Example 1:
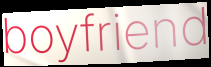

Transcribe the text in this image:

boyfriend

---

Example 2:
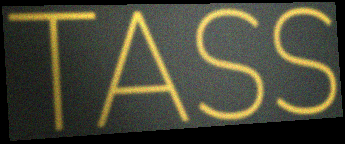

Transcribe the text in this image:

TASS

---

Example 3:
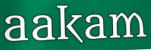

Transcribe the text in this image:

aakam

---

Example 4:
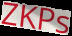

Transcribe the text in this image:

ZKPs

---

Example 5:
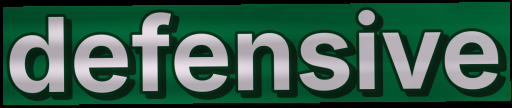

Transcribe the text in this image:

defensive